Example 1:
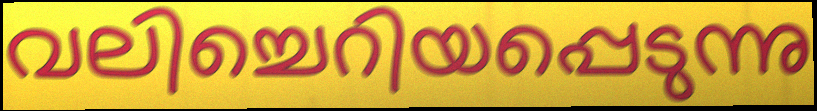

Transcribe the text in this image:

വലിച്ചെറിയപ്പെടുന്നു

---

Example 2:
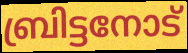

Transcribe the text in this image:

ബ്രിട്ടനോട്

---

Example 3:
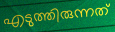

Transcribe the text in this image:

എടുത്തിരുന്നത്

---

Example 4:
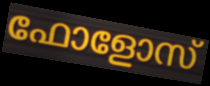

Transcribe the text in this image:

ഫോളോസ്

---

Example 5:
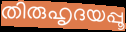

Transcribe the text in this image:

തിരുഹൃദയപ്പൂ